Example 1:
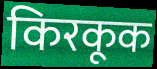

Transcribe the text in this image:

किरकूक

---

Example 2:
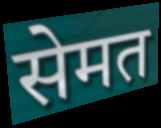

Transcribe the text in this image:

सेमत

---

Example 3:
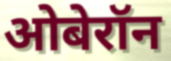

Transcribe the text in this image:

ओबेरॉन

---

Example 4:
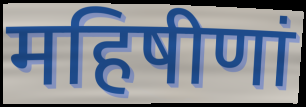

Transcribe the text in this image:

महिषीणां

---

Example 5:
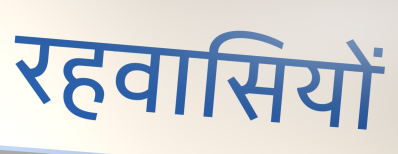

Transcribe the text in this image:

रहवासियों